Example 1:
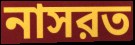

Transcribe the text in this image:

নাসরত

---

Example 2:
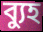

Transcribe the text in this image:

ব্যুহ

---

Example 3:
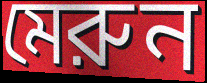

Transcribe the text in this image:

মেরুন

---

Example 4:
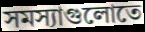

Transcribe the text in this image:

সমস্যাগুলোতে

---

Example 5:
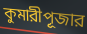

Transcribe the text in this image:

কুমারীপূজার